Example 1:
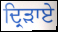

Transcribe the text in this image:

ਦ੍ਰਿੜਾਏ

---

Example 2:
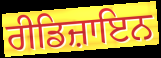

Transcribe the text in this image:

ਰੀਡਿਜ਼ਾਇਨ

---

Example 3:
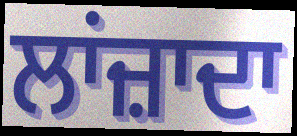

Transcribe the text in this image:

ਲਾਂਜ਼ਾਦਾ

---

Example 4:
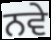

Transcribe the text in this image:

ਨਵੇ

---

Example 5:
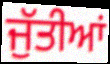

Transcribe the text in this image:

ਜੁੱਤੀਆਂ